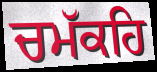
ਚਮੱਕਹਿ